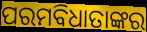
ପରମବିଧାତାଙ୍କର